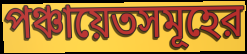
পঞ্চায়েতসমূহের